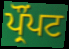
ਪ੍ਰੌੰਪਟ